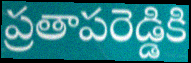
ప్రతాపరెడ్డికి